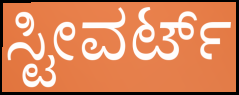
ಸ್ಟೀವರ್ಟ್